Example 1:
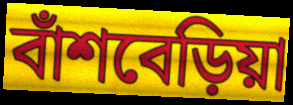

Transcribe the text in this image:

বাঁশবেড়িয়া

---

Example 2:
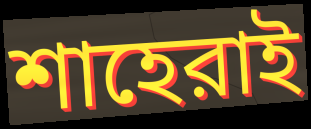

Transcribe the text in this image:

শাহেরাই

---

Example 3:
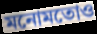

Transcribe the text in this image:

মনোমতোও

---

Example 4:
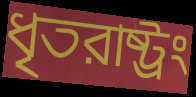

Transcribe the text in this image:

ধৃতরাষ্ট্রং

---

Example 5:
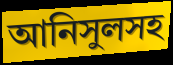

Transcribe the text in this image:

আনিসুলসহ